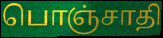
பொஞ்சாதி